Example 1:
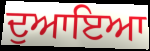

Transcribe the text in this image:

ਦੁਆਇਆ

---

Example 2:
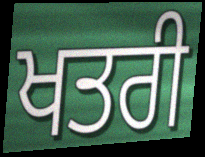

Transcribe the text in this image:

ਖਤਰੀ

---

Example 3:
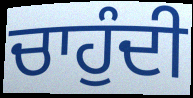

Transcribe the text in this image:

ਚਾਹੁੰਦੀ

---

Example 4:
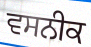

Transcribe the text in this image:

ਵਸਨੀਕ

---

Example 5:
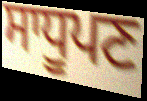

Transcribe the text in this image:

ਸਾਧੂਪਣ